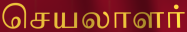
செயலாளர்